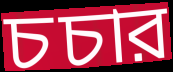
চচার